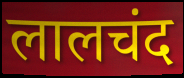
लालचंद